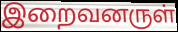
இறைவனருள்